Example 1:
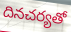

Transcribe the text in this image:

దినచర్యతో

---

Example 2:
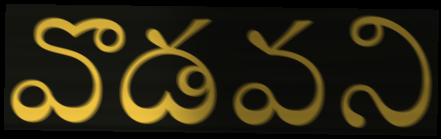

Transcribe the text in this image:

వొడవని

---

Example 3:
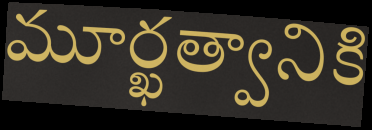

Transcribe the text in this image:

మూర్ఖత్వానికి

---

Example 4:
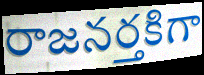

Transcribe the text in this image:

రాజనర్తకిగా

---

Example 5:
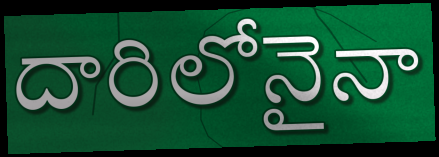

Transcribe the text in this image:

దారిలోనైనా